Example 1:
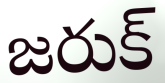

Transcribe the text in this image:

జరుక్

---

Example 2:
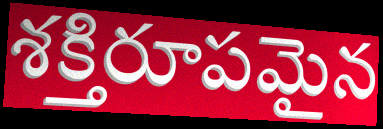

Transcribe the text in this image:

శక్తిరూపమైన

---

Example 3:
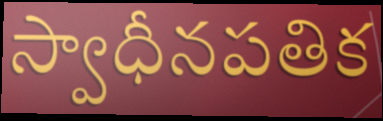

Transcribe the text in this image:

స్వాధీనపతిక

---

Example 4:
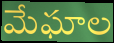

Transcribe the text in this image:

మేఘాల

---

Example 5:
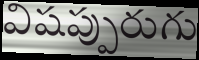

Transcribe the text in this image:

విషప్పురుగు